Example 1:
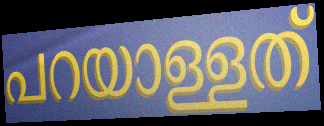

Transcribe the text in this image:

പറയാള്ളത്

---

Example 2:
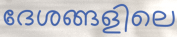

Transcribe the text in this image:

ദേശങ്ങളിലെ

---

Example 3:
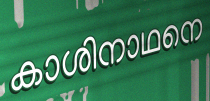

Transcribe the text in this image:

കാശിനാഥനെ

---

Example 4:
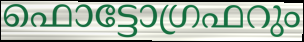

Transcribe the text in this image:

ഫൊട്ടോഗ്രഫറും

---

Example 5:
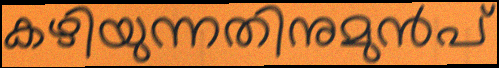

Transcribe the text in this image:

കഴിയുന്നതിനുമുൻപ്